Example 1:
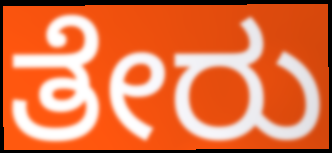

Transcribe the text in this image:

ತೇರು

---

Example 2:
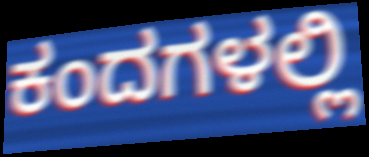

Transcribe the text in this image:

ಕಂದಗಳಲ್ಲಿ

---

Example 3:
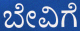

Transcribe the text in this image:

ಬೇವಿಗೆ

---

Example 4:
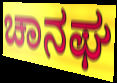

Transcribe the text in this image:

ಚಾನಘ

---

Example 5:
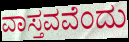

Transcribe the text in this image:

ವಾಸ್ತವವೆಂದು